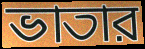
ভাতার